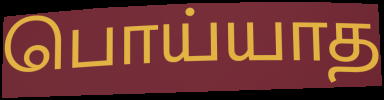
பொய்யாத